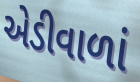
એડીવાળાં